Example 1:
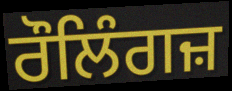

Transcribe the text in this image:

ਰੌਲਿੰਗਜ਼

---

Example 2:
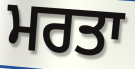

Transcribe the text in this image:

ਮਰਤਾ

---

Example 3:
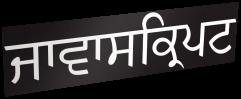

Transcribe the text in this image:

ਜਾਵਾਸਕ੍ਰਿਪਟ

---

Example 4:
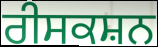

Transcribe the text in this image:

ਰੀਸਕਸ਼ਨ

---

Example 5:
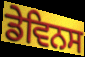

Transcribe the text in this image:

ਡੇਵਿਨਸ